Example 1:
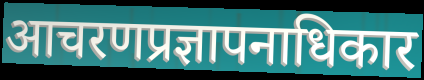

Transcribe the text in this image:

आचरणप्रज्ञापनाधिकार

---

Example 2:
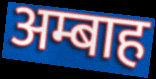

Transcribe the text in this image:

अम्बाह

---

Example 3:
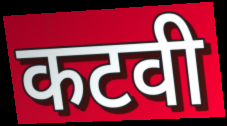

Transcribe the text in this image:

कटवी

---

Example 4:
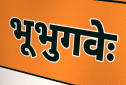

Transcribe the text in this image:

भूभुगवेः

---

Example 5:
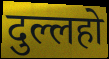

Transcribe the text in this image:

दुल्लहो